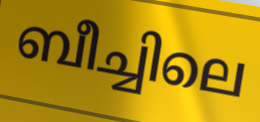
ബീച്ചിലെ